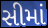
સીમાં